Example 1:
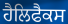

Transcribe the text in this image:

ਹੈਲਿਫੈਕਸ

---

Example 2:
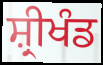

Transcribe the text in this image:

ਸ਼੍ਰੀਖੰਡ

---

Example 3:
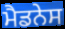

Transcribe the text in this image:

ਮੈਡਨੇਸ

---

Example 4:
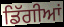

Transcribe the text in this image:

ਡਿੱਗੀਆਂ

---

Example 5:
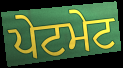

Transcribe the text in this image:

ਪੇਟਮੇਟ